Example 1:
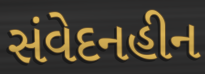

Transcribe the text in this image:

સંવેદનહીન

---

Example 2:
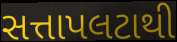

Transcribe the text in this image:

સત્તાપલટાથી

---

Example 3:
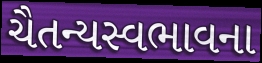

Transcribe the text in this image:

ચૈતન્યસ્વભાવના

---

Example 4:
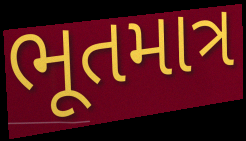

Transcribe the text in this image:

ભૂતમાત્ર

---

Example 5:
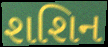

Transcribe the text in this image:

શશિન